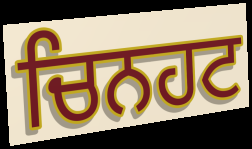
ਚਿਨਹਟ